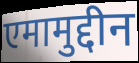
एमामुद्दीन